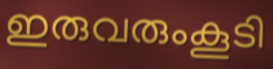
ഇരുവരുംകൂടി